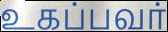
உகப்பவர்